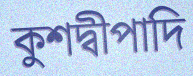
কুশদ্বীপাদি